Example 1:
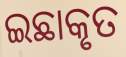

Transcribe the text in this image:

ଇଛାକୃତ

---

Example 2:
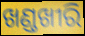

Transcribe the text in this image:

ଖଣ୍ଡଖୀରି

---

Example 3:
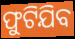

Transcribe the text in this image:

ଫୁଟିଯିବ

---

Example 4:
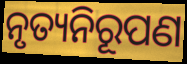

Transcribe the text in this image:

ନୃତ୍ୟନିରୂପଣ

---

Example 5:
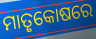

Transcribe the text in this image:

ମାତୃକୋଷରେ